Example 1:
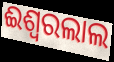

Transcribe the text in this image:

ଈଶ୍ଵରଲାଲ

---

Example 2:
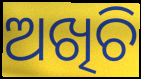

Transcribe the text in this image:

ଅଖିଚି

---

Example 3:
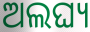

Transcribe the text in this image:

ଅଲଘ୍ୟ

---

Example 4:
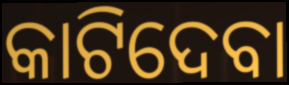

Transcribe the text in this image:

କାଟିଦେବା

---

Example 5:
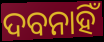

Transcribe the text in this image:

ଦବନାହିଁ